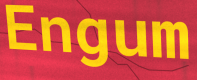
Engum